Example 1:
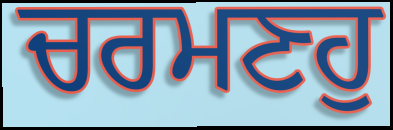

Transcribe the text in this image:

ਚਰਮਣਹੁ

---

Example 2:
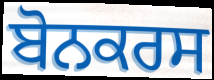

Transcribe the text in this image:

ਬੋਨਕਰਸ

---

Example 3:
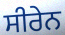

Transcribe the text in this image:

ਸੀਰੇਨ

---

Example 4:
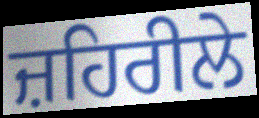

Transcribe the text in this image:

ਜ਼ਹਿਰੀਲੇ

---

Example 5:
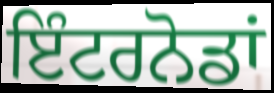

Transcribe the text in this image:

ਇੰਟਰਨੋਡਾਂ